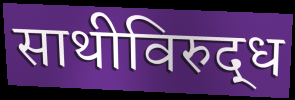
साथीविरुद्ध